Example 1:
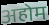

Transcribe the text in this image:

अहोम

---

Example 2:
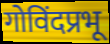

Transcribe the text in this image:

गोविंदप्रभू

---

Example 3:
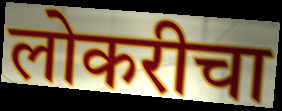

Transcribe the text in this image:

लोकरीचा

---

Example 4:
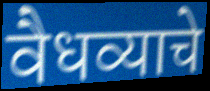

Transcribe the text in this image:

वैधव्याचे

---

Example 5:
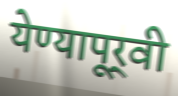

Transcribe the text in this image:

येण्यापूर्वी